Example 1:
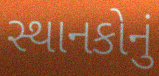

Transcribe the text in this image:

સ્થાનકોનું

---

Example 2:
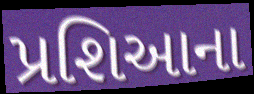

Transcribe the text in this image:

પ્રશિઆના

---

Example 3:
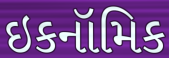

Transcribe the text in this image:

ઇકનૉમિક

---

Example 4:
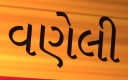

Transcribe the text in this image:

વણેલી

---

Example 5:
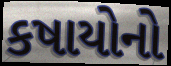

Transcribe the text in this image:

કષાયોનો